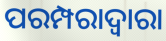
ପରମ୍ପରାଦ୍ବାରା